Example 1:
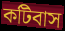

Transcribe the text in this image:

কটিবাস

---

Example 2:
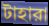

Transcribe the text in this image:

টাহারা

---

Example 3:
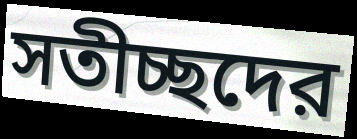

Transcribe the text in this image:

সতীচ্ছদের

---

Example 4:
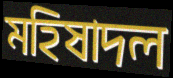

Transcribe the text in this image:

মহিষাদল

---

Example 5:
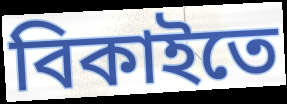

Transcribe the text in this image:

বিকাইতে